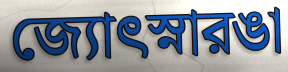
জ্যোৎস্নারঙা